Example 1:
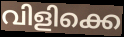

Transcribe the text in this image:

വിളിക്കെ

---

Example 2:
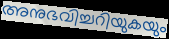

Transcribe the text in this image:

അനുഭവിച്ചറിയുകയും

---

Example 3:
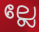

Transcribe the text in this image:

ല്ലേ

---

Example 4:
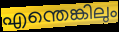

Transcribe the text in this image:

എന്തെങ്കിലും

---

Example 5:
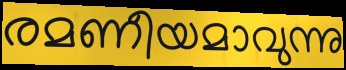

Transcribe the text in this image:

രമണീയമാവുന്നു